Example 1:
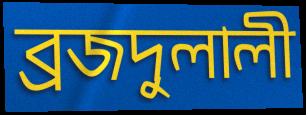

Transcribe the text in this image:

ব্রজদুলালী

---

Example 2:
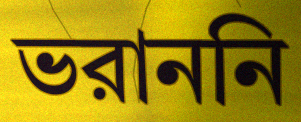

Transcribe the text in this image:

ভরাননি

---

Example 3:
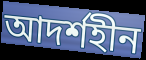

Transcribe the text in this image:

আদর্শহীন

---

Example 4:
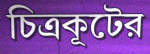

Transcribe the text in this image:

চিত্রকূটের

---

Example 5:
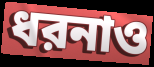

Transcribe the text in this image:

ধরনাও